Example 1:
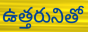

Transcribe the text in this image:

ఉత్తరునితో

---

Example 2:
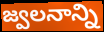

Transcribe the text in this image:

జ్వలనాన్ని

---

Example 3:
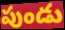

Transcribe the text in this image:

పుండు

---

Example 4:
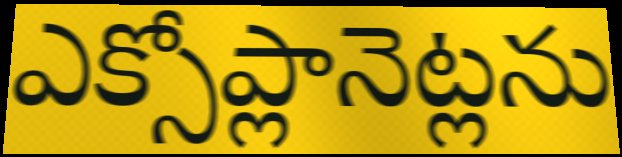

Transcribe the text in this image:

ఎక్సోప్లానెట్లను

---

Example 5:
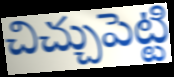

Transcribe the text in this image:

చిచ్చుపెట్టి